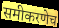
समीकरणेच